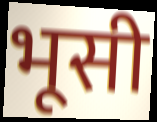
भूसी